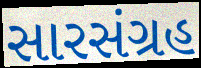
સારસંગ્રહ